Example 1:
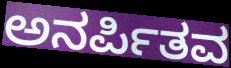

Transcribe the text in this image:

ಅನರ್ಪಿತವ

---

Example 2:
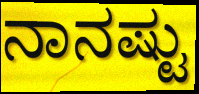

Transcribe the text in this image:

ನಾನಷ್ಟು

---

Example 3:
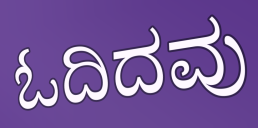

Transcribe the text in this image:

ಓದಿದವು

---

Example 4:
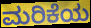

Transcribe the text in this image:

ಮರಿಕೆಯ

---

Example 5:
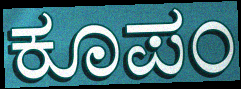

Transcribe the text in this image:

ಕೂಪಂ